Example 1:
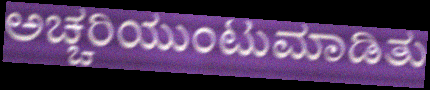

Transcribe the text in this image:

ಅಚ್ಚರಿಯುಂಟುಮಾಡಿತು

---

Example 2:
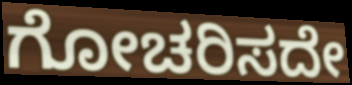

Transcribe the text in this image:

ಗೋಚರಿಸದೇ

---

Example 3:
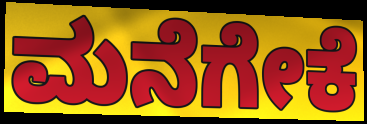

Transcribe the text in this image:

ಮನೆಗೇಕೆ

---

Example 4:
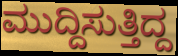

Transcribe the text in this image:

ಮುದ್ದಿಸುತ್ತಿದ್ದ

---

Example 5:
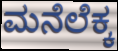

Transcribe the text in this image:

ಮನೆಲೆಕ್ಕ